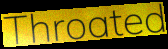
Throated